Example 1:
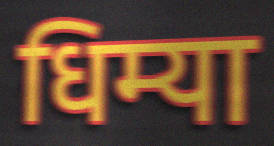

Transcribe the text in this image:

धिम्या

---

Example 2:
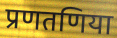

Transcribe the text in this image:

प्रणतणिया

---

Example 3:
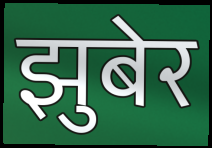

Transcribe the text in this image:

झुबेर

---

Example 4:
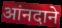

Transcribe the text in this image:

आंनदाने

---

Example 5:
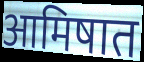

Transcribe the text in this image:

आमिषात